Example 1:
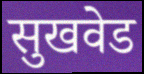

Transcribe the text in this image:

सुखवेड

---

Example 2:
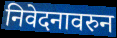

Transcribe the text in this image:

निवेदनावरुन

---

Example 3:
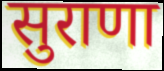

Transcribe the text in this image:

सुराणा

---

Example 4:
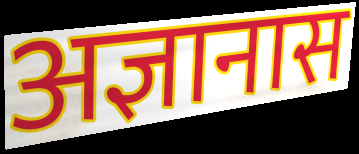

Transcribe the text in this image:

अज्ञानास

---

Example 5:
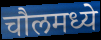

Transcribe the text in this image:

चौलमध्ये